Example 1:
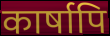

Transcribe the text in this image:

कार्षापि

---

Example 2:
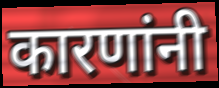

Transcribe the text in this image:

कारणांनी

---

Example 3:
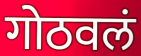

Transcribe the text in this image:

गोठवलं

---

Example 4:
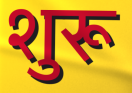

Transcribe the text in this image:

शुरू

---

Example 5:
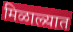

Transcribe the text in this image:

मिळाल्यात